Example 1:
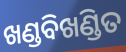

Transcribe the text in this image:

ଖଣ୍ଡବିଖଣ୍ଡିତ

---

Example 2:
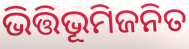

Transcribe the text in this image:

ଭିତ୍ତିଭୂମିଜନିତ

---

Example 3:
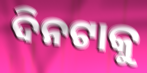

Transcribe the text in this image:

ଦିନଟାକୁ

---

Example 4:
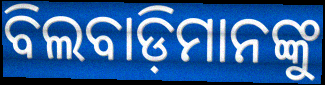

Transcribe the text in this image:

ବିଲବାଡ଼ିମାନଙ୍କୁ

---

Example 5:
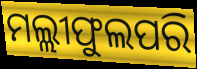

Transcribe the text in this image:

ମଲ୍ଲୀଫୁଲପରି